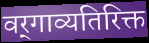
वर्गाव्यतिरिक्त